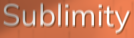
Sublimity